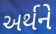
અર્થને